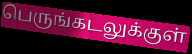
பெருங்கடலுக்குள்